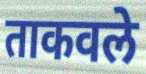
ताकवले